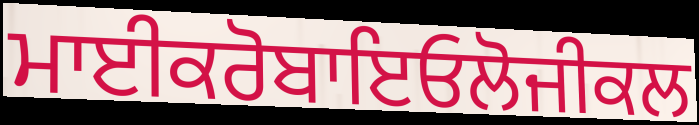
ਮਾਈਕਰੋਬਾਇਓਲੋਜੀਕਲ